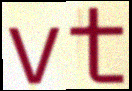
vt